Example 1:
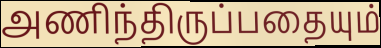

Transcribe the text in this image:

அணிந்திருப்பதையும்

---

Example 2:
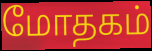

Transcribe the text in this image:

மோதகம்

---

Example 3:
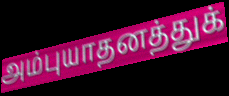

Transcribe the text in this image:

அம்புயாதனத்துக்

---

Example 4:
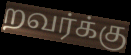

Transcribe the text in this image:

றவர்க்கு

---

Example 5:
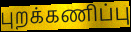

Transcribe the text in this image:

புறக்கணிப்பு